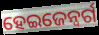
ହେଇଜେନ୍ବର୍ଗ